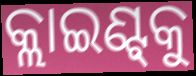
କ୍ଲାଇଣ୍ଟ୍‌କୁ